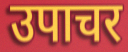
उपाचर